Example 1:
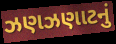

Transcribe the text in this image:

ઝણઝણાટનું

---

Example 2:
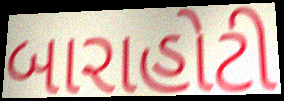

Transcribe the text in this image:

બારાહોટી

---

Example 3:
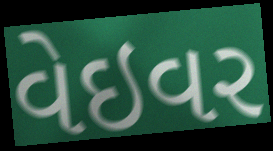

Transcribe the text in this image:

વેઇવર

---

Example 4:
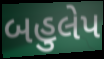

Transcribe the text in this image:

બહુલેપ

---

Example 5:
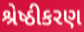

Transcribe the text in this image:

શ્રેષ્ઠીકરણ